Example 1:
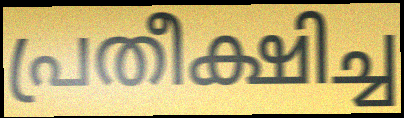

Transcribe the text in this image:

പ്രതീക്ഷിച്ച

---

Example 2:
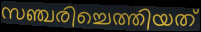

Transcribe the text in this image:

സഞ്ചരിച്ചെത്തിയത്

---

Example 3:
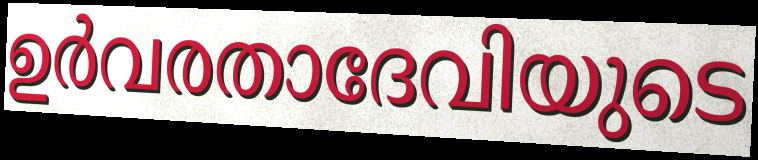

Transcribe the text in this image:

ഉർവരതാദേവിയുടെ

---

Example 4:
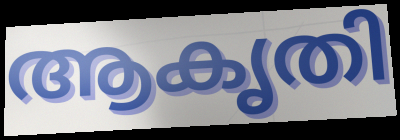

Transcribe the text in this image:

ആകൃതി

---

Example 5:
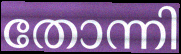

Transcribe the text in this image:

തോന്നി